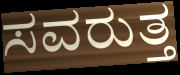
ಸವರುತ್ತ